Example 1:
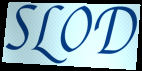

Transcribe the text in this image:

SLOD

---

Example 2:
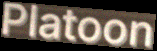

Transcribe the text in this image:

Platoon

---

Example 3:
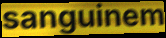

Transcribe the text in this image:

sanguinem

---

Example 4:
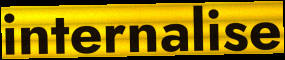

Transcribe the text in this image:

internalise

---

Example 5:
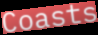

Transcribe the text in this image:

Coasts